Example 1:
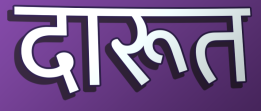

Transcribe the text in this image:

दारूत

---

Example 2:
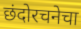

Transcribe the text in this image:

छंदोरचनेचा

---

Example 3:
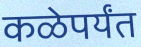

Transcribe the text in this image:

कळेपर्यंत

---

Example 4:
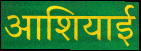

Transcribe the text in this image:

आशियाई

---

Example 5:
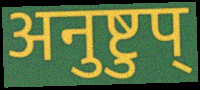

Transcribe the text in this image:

अनुष्टुप्